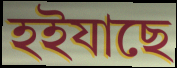
হইযাছে